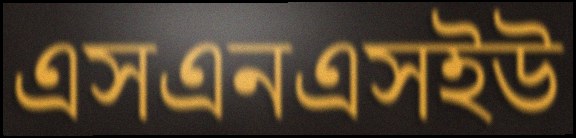
এসএনএসইউ